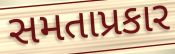
સમતાપ્રકાર